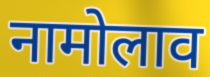
नामोलाव